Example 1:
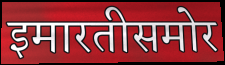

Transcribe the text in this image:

इमारतीसमोर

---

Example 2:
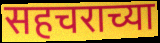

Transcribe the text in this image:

सहचराच्या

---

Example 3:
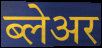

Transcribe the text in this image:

ब्लेअर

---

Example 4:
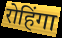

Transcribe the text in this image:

रोहिंगा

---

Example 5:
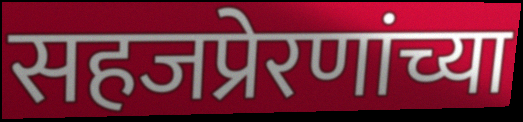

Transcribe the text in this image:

सहजप्रेरणांच्या